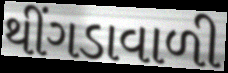
થીંગડાવાળી